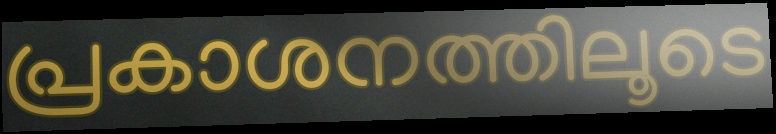
പ്രകാശനത്തിലൂടെ